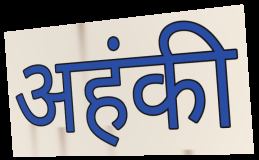
अहंकी